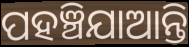
ପହଞ୍ଚିଯାଆନ୍ତି